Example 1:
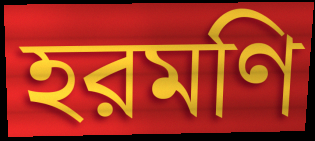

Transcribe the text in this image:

হরমণি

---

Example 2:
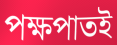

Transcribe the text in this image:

পক্ষপাতই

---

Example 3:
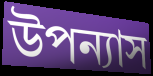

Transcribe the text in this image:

উপন্যাস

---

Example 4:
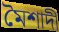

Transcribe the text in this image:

মৈশাদী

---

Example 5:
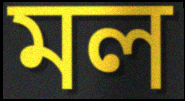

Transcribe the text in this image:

মল